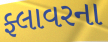
ફ્લાવરના